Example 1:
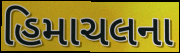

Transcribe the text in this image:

હિમાચલના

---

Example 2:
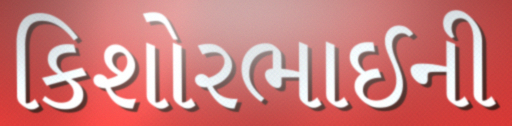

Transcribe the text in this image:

કિશોરભાઈની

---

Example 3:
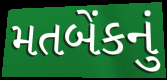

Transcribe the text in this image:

મતબેંકનું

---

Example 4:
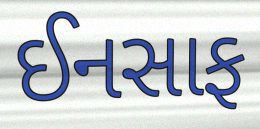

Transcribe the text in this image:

ઈનસાફ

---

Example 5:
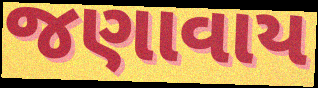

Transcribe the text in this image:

જણાવાય